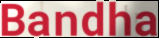
Bandha